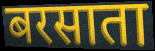
बरसाता